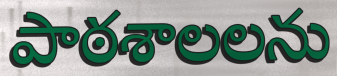
పాఠశాలలను